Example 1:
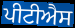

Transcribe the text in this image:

ਪੀਟੀਐਸ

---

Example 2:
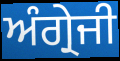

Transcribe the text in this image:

ਅੰਗ੍ਰੇਜੀ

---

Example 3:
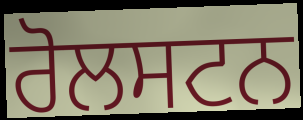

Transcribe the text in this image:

ਰੋਲਸਟਨ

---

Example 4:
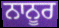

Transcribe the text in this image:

ਨਾਨੂਰ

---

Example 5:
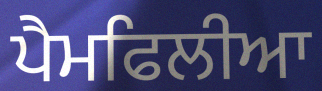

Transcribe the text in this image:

ਪੈਮਫਿਲੀਆ